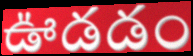
ఊడడం